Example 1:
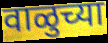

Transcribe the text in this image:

वाळुच्या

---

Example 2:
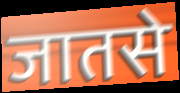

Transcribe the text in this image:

जातसे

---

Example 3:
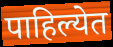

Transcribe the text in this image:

पाहिल्येत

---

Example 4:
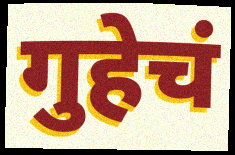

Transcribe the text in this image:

गुहेचं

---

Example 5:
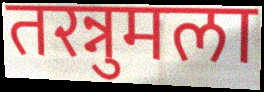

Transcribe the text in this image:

तरन्नुमला